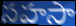
సహసా